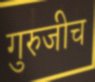
गुरुजीच